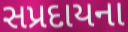
સપ્રદાયના